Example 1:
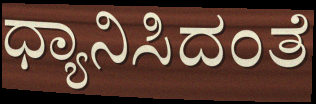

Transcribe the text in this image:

ಧ್ಯಾನಿಸಿದಂತೆ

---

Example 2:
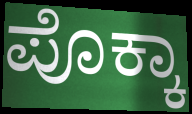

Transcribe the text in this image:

ಪೊಕ್ಕಾ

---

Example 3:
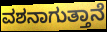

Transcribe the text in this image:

ವಶನಾಗುತ್ತಾನೆ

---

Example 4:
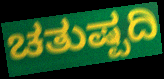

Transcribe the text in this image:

ಚತುಷ್ಪದಿ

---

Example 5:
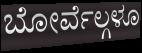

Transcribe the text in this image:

ಬೋರ್ವೆಲ್ಗಳೂ